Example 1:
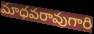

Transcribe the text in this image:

మాధవరావుగారి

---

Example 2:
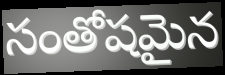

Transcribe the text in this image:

సంతోషమైన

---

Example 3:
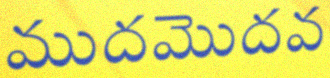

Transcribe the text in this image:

ముదమొదవ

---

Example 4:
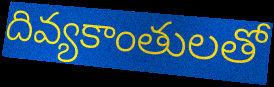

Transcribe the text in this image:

దివ్యకాంతులతో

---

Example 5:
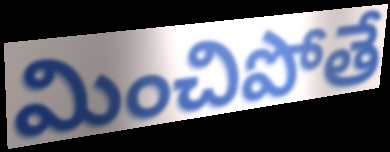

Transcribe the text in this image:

మించిపోతే